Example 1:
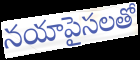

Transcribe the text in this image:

నయాపైసలతో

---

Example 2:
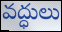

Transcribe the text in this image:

వద్ధులు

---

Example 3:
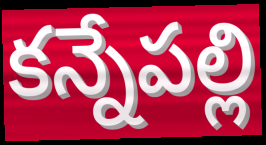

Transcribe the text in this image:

కన్నేపల్లి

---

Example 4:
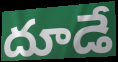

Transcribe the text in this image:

దూడే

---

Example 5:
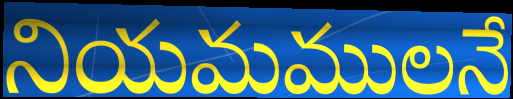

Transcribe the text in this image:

నియమములనే